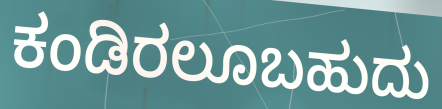
ಕಂಡಿರಲೂಬಹುದು